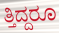
ತ್ತಿದ್ದರೂ